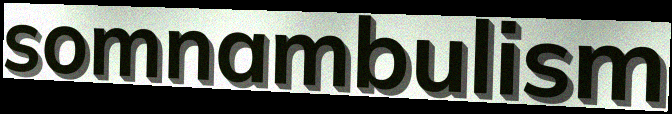
somnambulism